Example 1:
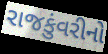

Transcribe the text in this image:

રાજકુંવરીનો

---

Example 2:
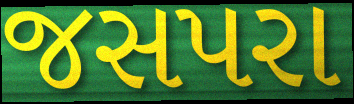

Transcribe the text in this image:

જસપરા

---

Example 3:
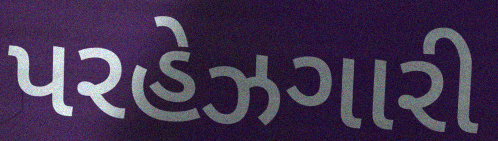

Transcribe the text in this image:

પરહેઝગારી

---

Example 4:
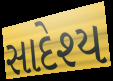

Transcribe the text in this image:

સાદેશ્ય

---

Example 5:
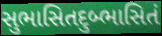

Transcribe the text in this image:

સુભાસિતદુબ્ભાસિતં